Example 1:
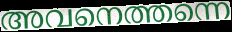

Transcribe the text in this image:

അവനെത്തന്നെ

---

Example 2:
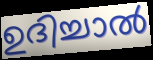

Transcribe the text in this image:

ഉദിച്ചാൽ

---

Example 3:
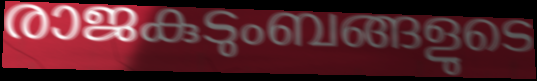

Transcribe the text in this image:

രാജകുടുംബങ്ങളുടെ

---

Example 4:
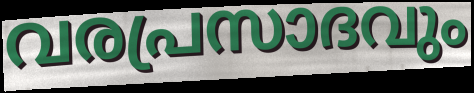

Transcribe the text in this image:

വരപ്രസാദവും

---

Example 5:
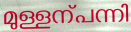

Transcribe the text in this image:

മുള്ളന്പന്നി